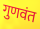
गुणवंत